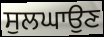
ਸੁਲਘਾਉਣ